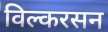
विल्करसन